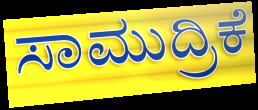
ಸಾಮುದ್ರಿಕೆ